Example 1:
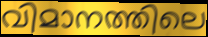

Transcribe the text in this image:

വിമാനത്തിലെ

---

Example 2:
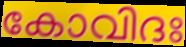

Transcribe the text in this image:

കോവിദഃ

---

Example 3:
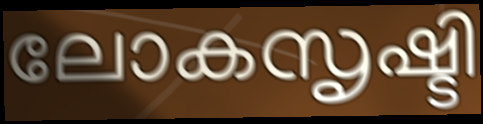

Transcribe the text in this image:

ലോകസൃഷ്ടി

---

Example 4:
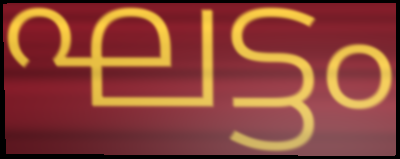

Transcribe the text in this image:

ഘട്ടം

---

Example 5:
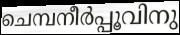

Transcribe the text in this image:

ചെമ്പനീർപ്പൂവിനു